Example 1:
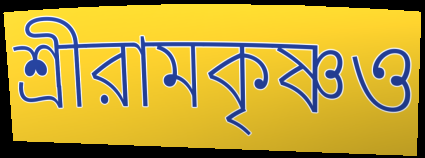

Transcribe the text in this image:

শ্রীরামকৃষ্ণও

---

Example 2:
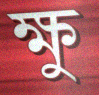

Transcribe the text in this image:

ক্ষু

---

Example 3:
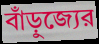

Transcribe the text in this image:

বাঁড়ুজ্যের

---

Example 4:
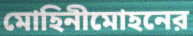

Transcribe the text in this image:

মোহিনীমোহনের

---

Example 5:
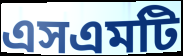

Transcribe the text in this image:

এসএমটি